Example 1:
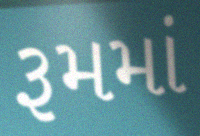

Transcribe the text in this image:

રૂમમાં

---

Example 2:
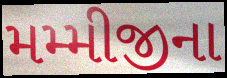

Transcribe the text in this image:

મમ્મીજીના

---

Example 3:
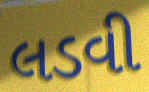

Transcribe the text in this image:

લડવી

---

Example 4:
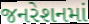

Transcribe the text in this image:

જનરેશનમાં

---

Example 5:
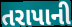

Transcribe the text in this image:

તરાપાની